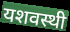
यशवस्थी